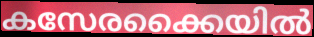
കസേരക്കൈയിൽ